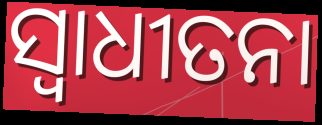
ସ୍ବାଧୀତନା